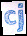
cj